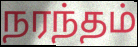
நரந்தம்